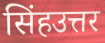
सिंहउत्तर